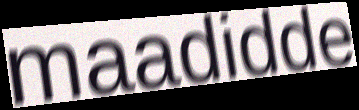
maadidde